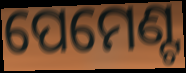
ପେମେଣ୍ଟ